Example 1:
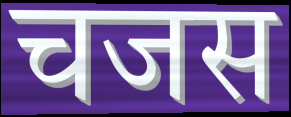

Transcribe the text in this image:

चजस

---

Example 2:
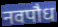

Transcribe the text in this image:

नवपौध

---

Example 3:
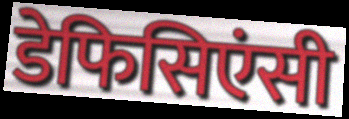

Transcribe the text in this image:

डेफिसिएंसी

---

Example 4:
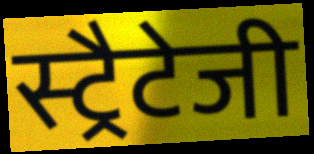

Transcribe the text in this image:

स्ट्रैटेजी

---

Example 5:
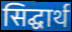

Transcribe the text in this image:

सिद्घार्थ